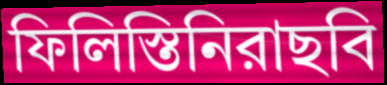
ফিলিস্তিনিরাছবি